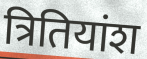
त्रितियांश